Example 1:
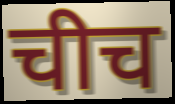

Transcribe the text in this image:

चीच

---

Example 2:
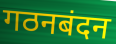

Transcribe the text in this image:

गठनबंदन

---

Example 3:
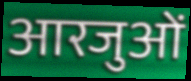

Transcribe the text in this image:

आरजुओं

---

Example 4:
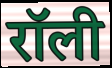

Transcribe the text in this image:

रॉली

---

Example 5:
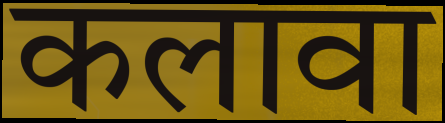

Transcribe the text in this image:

कलावा